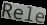
Rele